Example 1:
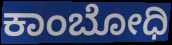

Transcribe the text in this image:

ಕಾಂಬೋಧಿ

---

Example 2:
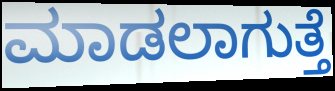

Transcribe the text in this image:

ಮಾಡಲಾಗುತ್ತೆ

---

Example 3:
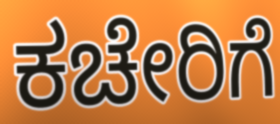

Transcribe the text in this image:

ಕಚೇರಿಗೆ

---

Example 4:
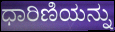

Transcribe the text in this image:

ಧಾರಿಣಿಯನ್ನು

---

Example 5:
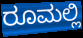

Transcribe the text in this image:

ರೂಮಲ್ಲಿ